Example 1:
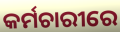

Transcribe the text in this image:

କର୍ମଚାରୀରେ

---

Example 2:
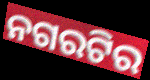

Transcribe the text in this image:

ନଗରଟିର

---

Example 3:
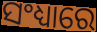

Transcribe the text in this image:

ସଂଧ୍ୟାରେ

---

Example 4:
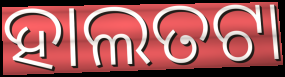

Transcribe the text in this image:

ହାଲତଟା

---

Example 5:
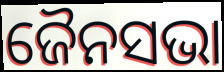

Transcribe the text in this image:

ଜୈନସଭା